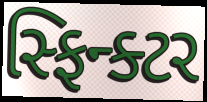
સ્ફિન્ક્ટર